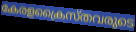
കേരളക്രൈസ്തവരുടെ